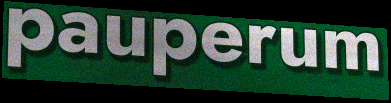
pauperum